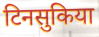
टिनसुकिया